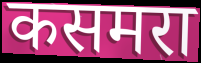
कसमरा